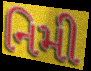
નિમી